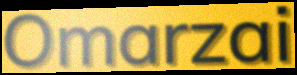
Omarzai